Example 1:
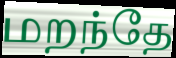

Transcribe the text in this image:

மறந்தே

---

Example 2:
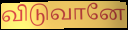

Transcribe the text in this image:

விடுவானே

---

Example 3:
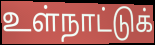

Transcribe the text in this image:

உள்நாட்டுக்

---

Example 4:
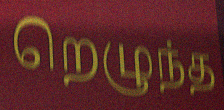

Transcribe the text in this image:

றெழுந்த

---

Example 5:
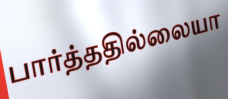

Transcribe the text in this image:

பார்த்ததில்லையா